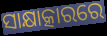
ସାକ୍ଷାତ୍କାରରେ